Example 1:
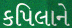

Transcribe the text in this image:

કપિલાને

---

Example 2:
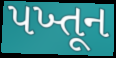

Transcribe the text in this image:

પખ્તૂન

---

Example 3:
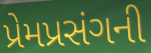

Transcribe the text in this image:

પ્રેમપ્રસંગની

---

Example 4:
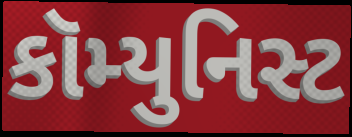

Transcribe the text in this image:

કૉમ્યુનિસ્ટ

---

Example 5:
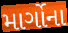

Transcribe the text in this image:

માર્ગોના